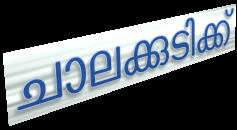
ചാലക്കുടിക്ക്